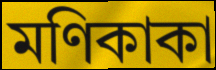
মণিকাকা